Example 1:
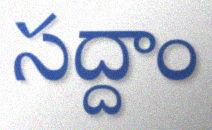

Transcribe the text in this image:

సద్దాం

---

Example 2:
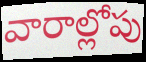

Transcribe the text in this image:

వారాల్లోపు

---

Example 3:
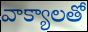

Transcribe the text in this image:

వాక్యాలతో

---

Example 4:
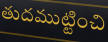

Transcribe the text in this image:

తుదముట్టించి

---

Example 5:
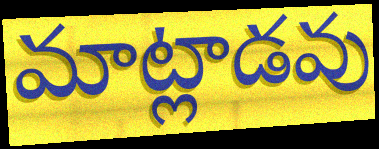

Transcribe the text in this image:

మాట్లాడవు